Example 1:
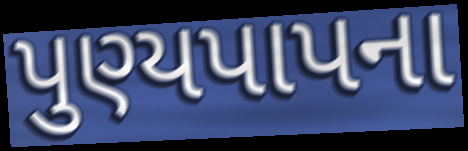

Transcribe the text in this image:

પુણ્યપાપના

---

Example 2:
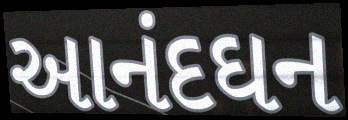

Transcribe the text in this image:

આનંદઘન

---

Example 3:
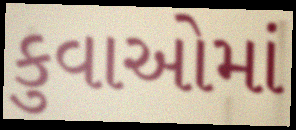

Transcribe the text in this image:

કુવાઓમાં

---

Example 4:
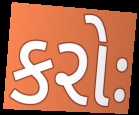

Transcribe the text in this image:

કરોઃ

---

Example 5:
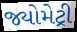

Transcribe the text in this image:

જ્યોમેટ્રી